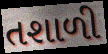
તશાળી